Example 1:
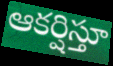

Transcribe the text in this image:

ఆకర్షిస్తూ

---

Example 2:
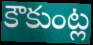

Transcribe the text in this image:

కౌకుంట్ల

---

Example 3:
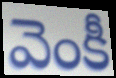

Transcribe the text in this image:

వెంకీ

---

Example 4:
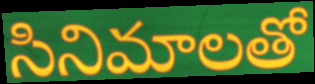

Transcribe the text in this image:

సినిమాలతో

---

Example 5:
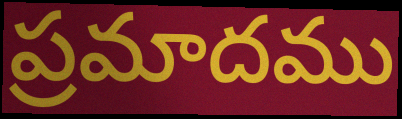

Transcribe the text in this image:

ప్రమాదము